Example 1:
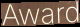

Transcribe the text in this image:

Award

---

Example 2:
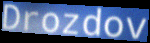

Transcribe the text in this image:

Drozdov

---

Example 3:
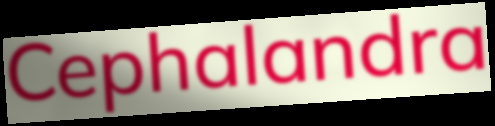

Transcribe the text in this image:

Cephalandra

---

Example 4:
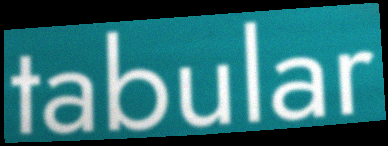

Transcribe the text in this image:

tabular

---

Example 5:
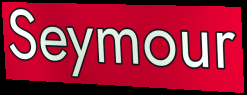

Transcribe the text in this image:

Seymour